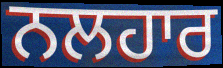
ਨਲਹਾਰ